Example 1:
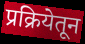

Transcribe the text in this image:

प्रक्रियेतून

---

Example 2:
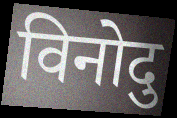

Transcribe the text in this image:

विनोदु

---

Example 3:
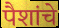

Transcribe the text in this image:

पैशांचे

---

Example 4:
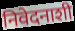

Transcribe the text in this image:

निवेदनाशी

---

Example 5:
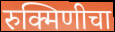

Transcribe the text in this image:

रुक्मिणीचा